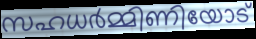
സഹധർമ്മിണിയോട്